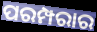
ପରମ୍ପରାର